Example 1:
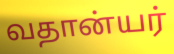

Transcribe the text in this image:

வதான்யர்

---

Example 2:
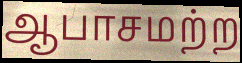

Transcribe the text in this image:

ஆபாசமற்ற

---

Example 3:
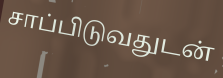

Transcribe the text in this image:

சாப்பிடுவதுடன்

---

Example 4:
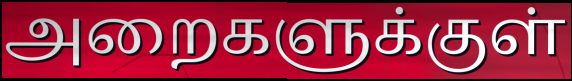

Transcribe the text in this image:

அறைகளுக்குள்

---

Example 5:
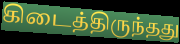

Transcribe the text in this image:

கிடைத்திருந்தது